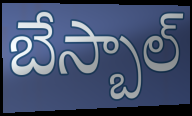
బేస్బాల్